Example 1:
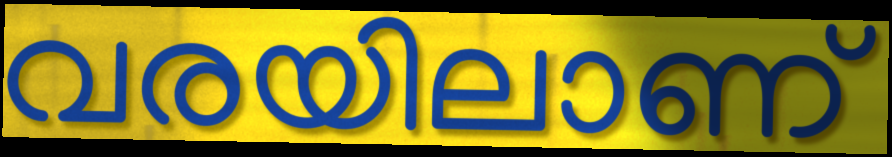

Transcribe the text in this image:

വരയിലാണ്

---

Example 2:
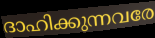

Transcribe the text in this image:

ദാഹിക്കുന്നവരേ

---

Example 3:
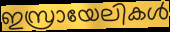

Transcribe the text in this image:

ഇസ്രായേലികൾ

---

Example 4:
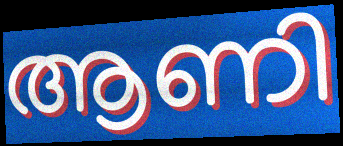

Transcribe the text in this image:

ആണി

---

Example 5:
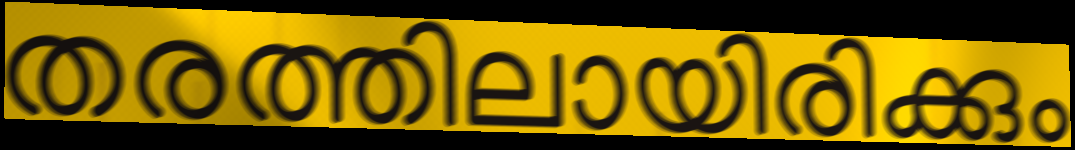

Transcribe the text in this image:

തരത്തിലായിരിക്കും